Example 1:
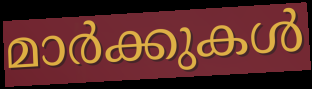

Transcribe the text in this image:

മാർക്കുകൾ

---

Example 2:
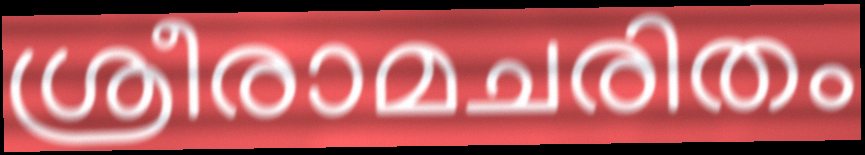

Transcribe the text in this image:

ശ്രീരാമചരിതം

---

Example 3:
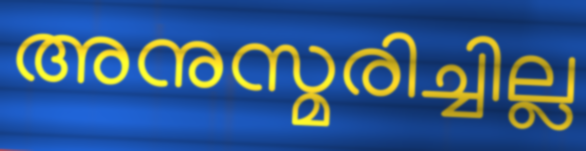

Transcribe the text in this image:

അനുസ്മരിച്ചില്ല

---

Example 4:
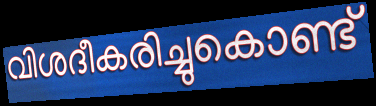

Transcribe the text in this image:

വിശദീകരിച്ചുകൊണ്ട്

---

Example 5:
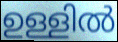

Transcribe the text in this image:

ഉള്ളിൽ